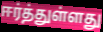
ஈர்த்துள்ளது